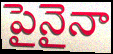
పైనైనా